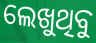
ଲେଖୁଥିବୁ